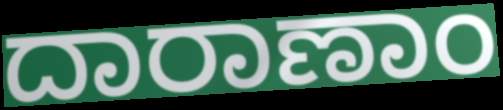
ದಾರಾಣಾಂ